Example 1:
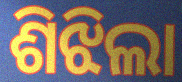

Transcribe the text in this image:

ଶିଝିଲା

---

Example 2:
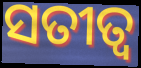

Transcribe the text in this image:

ସତୀତ୍ବ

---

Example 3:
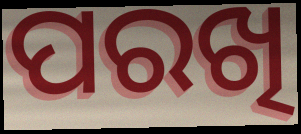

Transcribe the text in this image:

ପରଖି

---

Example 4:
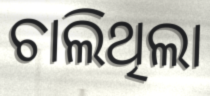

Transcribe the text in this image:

ଚାଲିଥିଲା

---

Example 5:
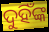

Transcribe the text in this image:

ଦୁହିଁଙ୍କ